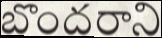
బొందరాని